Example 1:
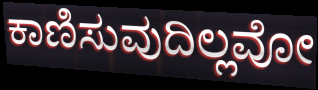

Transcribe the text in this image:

ಕಾಣಿಸುವುದಿಲ್ಲವೋ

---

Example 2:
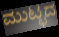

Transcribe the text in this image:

ಮುಟ್ಟದ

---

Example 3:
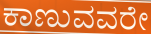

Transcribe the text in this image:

ಕಾಣುವವರೇ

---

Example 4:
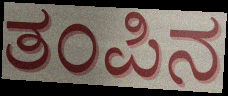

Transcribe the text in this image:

ತಂಪಿನ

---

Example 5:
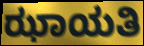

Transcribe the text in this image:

ಝಾಯತಿ